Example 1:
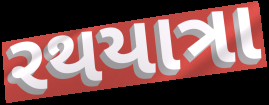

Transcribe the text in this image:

રથયાત્રા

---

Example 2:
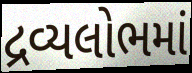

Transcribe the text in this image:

દ્રવ્યલોભમાં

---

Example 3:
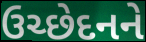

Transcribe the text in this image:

ઉચ્છેદનને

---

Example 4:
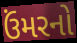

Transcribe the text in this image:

ઉંમરનો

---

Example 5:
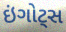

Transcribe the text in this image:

ઇંગોટ્સ